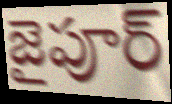
జైపూర్